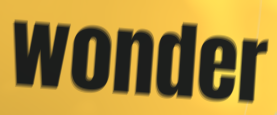
wonder